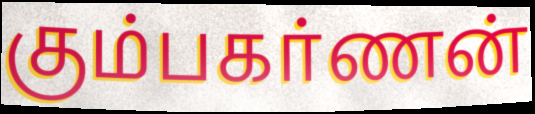
கும்பகர்ணன்